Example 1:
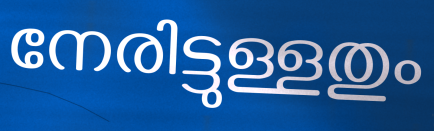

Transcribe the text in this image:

നേരിട്ടുള്ളതും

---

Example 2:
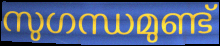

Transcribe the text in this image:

സുഗന്ധമുണ്ട്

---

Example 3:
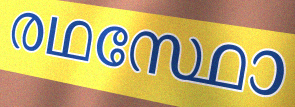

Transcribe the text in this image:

രഥസ്ഥോ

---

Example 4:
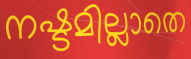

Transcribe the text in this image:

നഷ്ടമില്ലാതെ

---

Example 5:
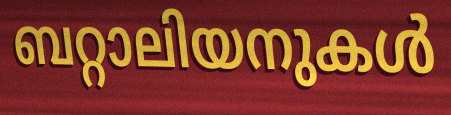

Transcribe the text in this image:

ബറ്റാലിയനുകൾ